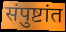
संपुष्टांत